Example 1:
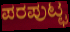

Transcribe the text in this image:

ಪರಪುಟ್ಟ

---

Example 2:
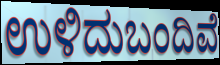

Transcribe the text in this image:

ಉಳಿದುಬಂದಿವೆ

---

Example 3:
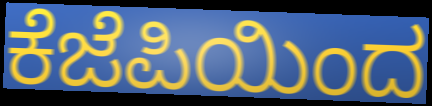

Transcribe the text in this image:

ಕೆಜೆಪಿಯಿಂದ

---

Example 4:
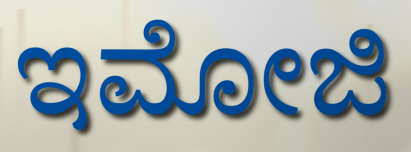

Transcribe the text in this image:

ಇಮೋಜಿ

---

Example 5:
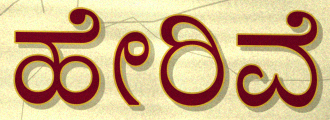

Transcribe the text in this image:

ಹೇರಿವೆ